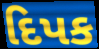
દિપક